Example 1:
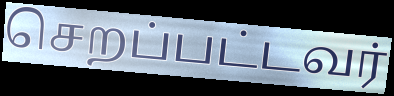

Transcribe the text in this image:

செறப்பட்டவர்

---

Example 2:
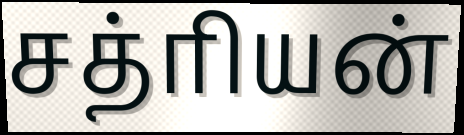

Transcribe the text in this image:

சத்ரியன்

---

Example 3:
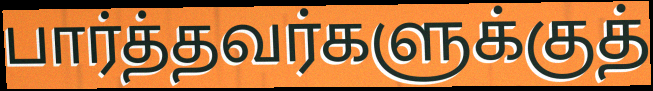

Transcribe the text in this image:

பார்த்தவர்களுக்குத்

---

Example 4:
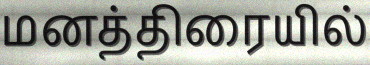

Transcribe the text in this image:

மனத்திரையில்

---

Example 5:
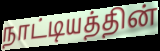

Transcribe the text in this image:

நாட்டியத்தின்